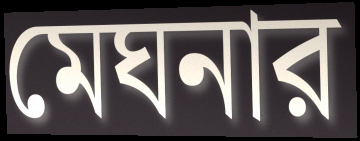
মেঘনার